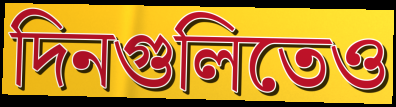
দিনগুলিতেও